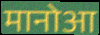
मानोआ